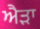
ਐੜਾ